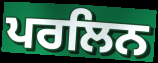
ਪਰਲਿਨ